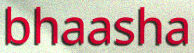
bhaasha